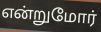
என்றுமோர்